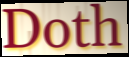
Doth